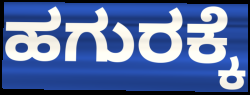
ಹಗುರಕ್ಕೆ